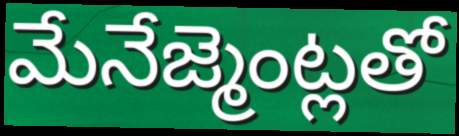
మేనేజ్మెంట్లతో